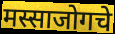
मस्साजोगचे